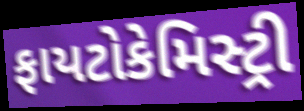
ફાયટોકેમિસ્ટ્રી